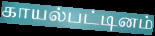
காயல்பட்டினம்